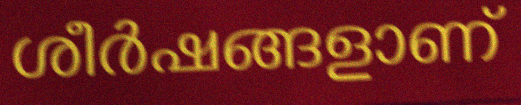
ശീർഷങ്ങളാണ്